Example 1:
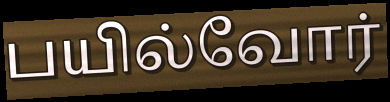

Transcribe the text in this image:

பயில்வோர்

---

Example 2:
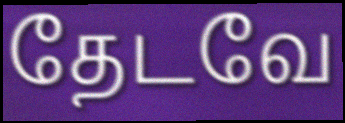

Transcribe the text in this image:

தேடவே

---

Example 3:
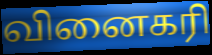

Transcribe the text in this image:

வினைகரி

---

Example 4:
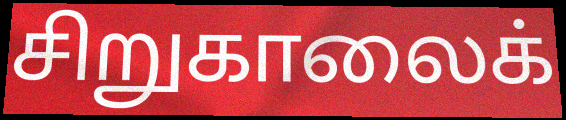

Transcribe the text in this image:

சிறுகாலைக்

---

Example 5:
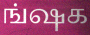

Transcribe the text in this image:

ங்ஷக